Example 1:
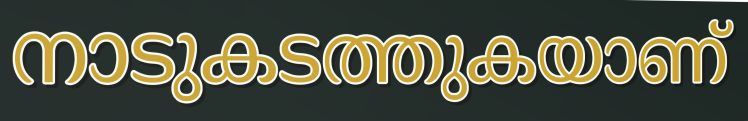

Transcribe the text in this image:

നാടുകടത്തുകയാണ്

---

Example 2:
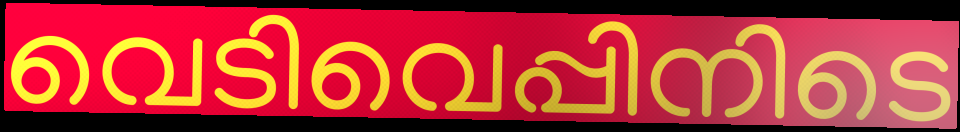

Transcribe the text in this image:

വെടിവെപ്പിനിടെ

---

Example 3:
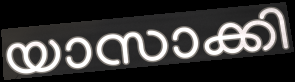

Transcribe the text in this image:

യാസാക്കി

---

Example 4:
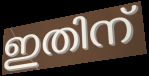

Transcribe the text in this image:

ഇതിന്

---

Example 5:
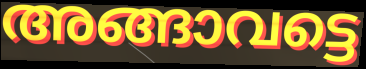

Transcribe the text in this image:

അങ്ങാവട്ടെ